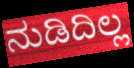
ನುಡಿದಿಲ್ಲ